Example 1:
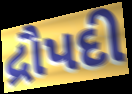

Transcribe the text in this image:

દ્રૌપદી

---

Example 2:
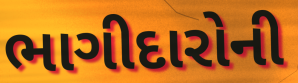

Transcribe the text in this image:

ભાગીદારોની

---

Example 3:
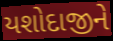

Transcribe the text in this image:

યશોદાજીને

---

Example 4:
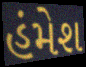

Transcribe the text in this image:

હંમેશ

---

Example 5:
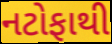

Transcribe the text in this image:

નટોફાથી